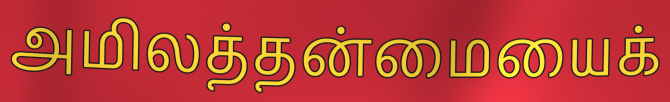
அமிலத்தன்மையைக்